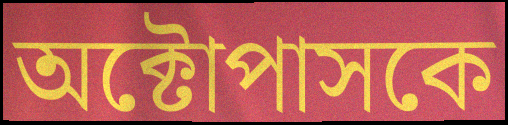
অক্টোপাসকে